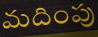
మదింపు